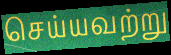
செய்யவற்று